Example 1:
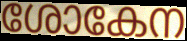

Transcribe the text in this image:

ശോകേന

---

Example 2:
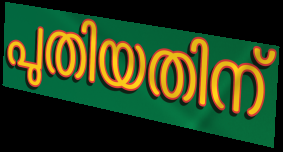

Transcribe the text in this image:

പുതിയതിന്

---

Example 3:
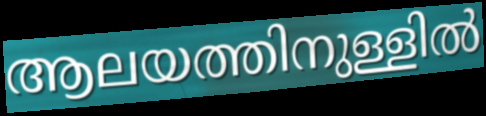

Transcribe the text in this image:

ആലയത്തിനുള്ളിൽ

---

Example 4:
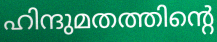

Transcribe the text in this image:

ഹിന്ദുമതത്തിന്റെ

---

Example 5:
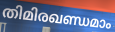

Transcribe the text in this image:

തിമിരഖണ്ഡമാം